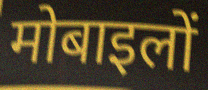
मोबाइलों